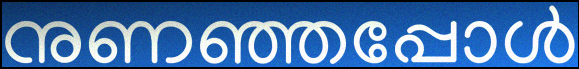
നുണഞ്ഞപ്പോൾ